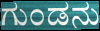
ಗುಂಡನು